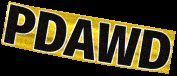
PDAWD